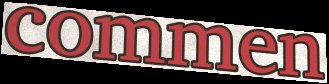
commen